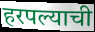
हरपल्याची